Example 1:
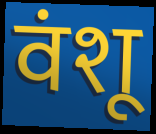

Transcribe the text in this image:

वंशू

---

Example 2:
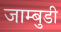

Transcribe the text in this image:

जाम्बुडी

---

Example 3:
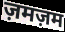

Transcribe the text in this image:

ज़मज़म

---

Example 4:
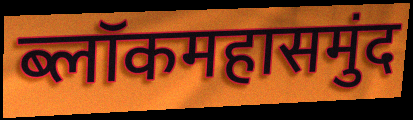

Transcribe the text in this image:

ब्लॉकमहासमुंद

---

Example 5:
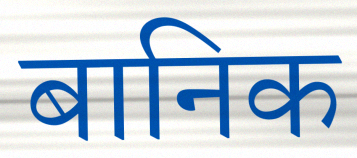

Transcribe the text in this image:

बानिक